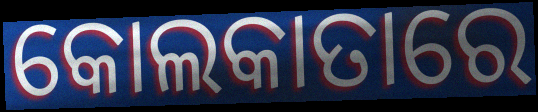
କୋଲକାତାରେ